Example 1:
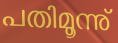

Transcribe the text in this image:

പതിമൂന്നു്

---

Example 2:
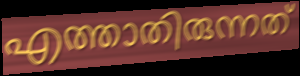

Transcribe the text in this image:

എത്താതിരുന്നത്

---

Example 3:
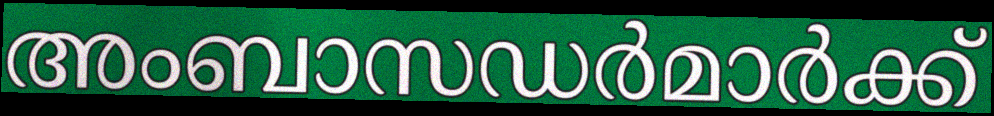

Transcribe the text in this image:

അംബാസഡർമാർക്ക്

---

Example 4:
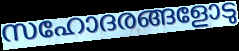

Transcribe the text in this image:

സഹോദരങ്ങളോടു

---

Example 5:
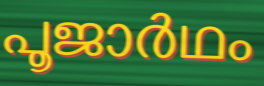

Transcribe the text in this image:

പൂജാർഥം